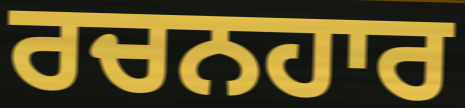
ਰਚਨਹਾਰ